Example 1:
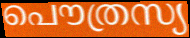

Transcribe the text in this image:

പൌത്രസ്യ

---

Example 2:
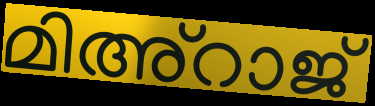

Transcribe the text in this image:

മിഅ്റാജ്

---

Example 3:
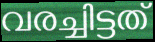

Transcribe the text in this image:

വരച്ചിട്ടത്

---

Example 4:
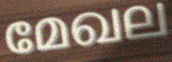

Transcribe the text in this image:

മേഖല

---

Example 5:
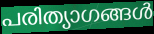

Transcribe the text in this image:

പരിത്യാഗങ്ങൾ